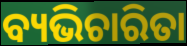
ବ୍ୟଭିଚାରିତା